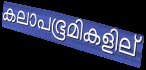
കലാപഭൂമികളില്